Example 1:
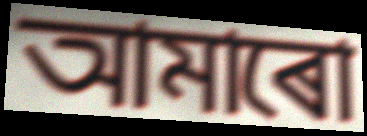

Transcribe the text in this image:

আমাৰো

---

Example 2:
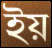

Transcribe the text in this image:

ইয়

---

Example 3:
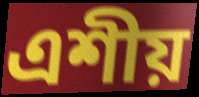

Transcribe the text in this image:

এশীয়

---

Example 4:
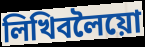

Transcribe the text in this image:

লিখিবলৈয়ো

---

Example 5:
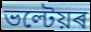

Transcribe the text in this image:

ভল্টেয়ৰ